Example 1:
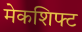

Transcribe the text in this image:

मेकशिफ्ट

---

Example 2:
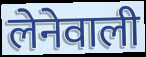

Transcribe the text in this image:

लेनेवाली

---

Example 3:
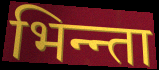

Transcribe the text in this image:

भिन्न्ता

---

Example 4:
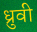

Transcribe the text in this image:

ध्रुवी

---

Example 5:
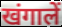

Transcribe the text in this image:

खंगालें